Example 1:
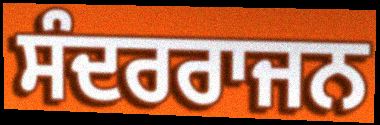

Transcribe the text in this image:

ਸੰਦਰਰਾਜਨ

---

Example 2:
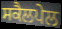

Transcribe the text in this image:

ਸਕੈਲਪੇਲ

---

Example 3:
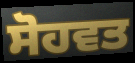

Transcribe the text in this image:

ਸੋਹਵਤ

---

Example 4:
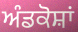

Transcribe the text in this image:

ਅੰਡਕੋਸ਼ਾਂ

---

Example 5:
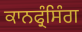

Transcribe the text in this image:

ਕਾਨਫ੍ਰੰਸਿੰਗ